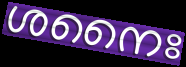
ശനൈഃ